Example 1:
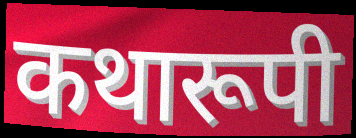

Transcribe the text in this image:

कथारूपी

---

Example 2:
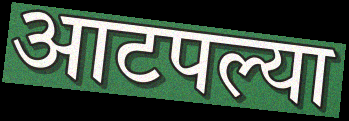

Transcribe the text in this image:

आटपल्या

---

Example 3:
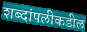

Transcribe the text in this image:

शब्दांपलीकडील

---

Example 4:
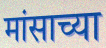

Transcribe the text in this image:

मांसाच्या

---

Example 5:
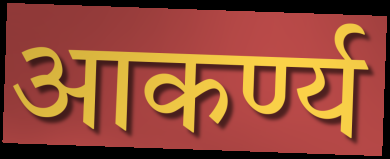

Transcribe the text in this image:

आकर्ण्य